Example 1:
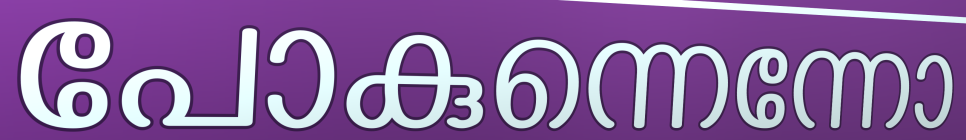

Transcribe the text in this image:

പോകുന്നെന്നോ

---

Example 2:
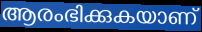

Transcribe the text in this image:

ആരംഭിക്കുകയാണ്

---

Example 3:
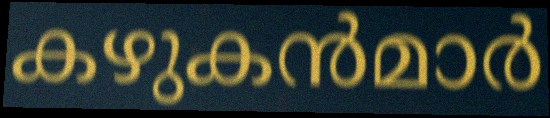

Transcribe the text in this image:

കഴുകൻമാർ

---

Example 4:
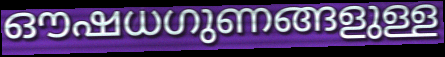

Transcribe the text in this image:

ഔഷധഗുണങ്ങളുള്ള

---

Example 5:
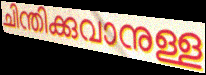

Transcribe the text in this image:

ചിന്തിക്കുവാനുള്ള